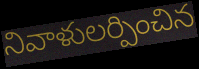
నివాళులర్పించిన